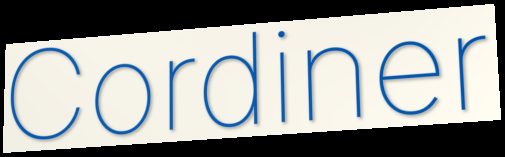
Cordiner